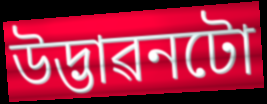
উদ্ভাৱনটো